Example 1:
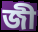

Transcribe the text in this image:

জী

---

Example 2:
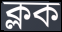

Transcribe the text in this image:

ক্লক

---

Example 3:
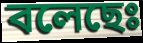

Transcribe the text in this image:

বলেছেঃ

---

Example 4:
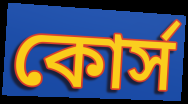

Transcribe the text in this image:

কোর্স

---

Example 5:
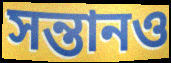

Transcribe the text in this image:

সন্তানও